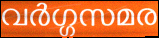
വർഗ്ഗസമര